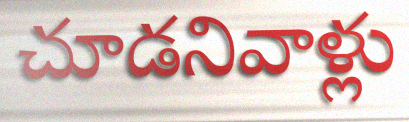
చూడనివాళ్లు